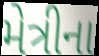
મેત્રીના